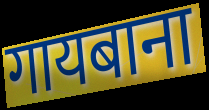
गायबाना